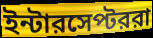
ইন্টারসেপ্টররা